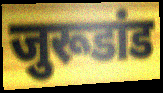
जुरूडांड